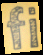
fi